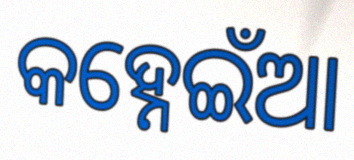
କହ୍ନେଇଁଆ